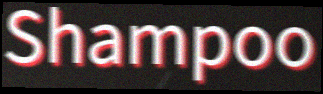
Shampoo